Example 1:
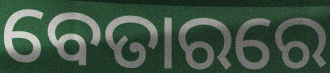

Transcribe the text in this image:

ବେତାରରେ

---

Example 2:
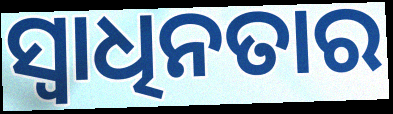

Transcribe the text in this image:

ସ୍ୱାଧିନତାର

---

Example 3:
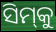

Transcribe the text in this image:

ସିମ୍‌କୁ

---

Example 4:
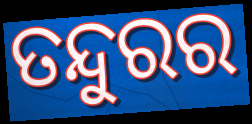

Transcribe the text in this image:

ତନ୍ଦୁରର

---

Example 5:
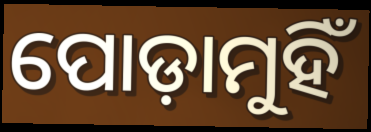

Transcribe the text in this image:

ପୋଡ଼ାମୁହିଁ